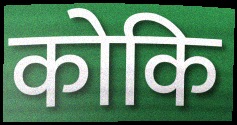
कोकि